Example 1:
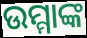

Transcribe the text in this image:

ଉମ୍ମାଙ୍କ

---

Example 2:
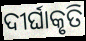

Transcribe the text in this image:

ଦୀର୍ଘାକୃତି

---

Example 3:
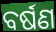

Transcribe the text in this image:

ବର୍ଷଣ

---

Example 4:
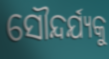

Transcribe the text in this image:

ସୌନ୍ଦର୍ଯ୍ଯକୁ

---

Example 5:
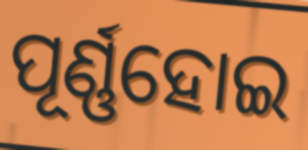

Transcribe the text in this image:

ପୂର୍ଣ୍ଣହୋଇ